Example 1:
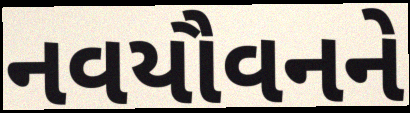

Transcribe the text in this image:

નવયૌવનને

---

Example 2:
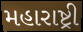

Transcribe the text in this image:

મહારાષ્ટ્રી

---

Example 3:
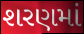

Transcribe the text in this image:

શરણમાં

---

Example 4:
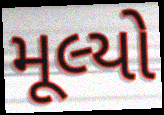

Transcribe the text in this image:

મૂલ્યો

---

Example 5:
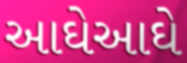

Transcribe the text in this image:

આઘેઆઘે